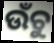
ଉଁଚୁ